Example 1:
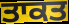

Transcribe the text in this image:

ਤਾਕਤ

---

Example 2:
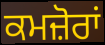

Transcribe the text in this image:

ਕਮਜ਼ੋਰਾਂ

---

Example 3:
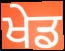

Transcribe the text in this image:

ਖੇਡ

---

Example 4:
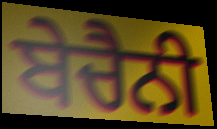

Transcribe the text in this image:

ਬੇਚੈਨੀ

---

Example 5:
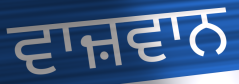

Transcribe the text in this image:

ਵਾਜ਼ਵਾਨ